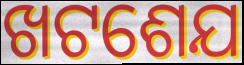
ଖଟଶେଯ